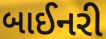
બાઈનરી